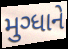
મુગ્ધાને